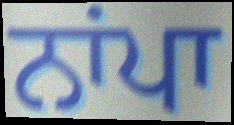
ਨਾਂਪਾ